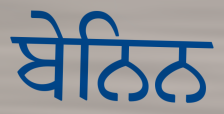
ਬੇਨਿਨ